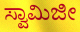
ಸ್ವಾಮಿಜೀ